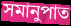
সমানুপাত